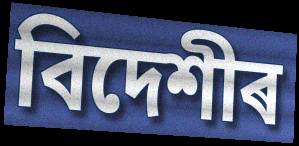
বিদেশীৰ